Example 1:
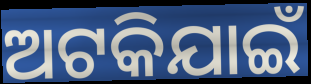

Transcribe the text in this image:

ଅଟକିଯାଇଁ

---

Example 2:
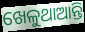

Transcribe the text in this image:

ଖେଳୁଥାଆନ୍ତି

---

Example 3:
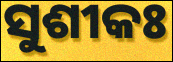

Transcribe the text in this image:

ସୁଶୀକଃ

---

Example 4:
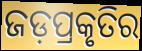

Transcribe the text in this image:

ଜଡ଼ପ୍ରକୃତିର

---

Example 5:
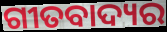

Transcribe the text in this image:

ଗୀତବାଦ୍ୟର